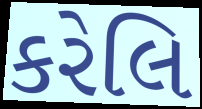
કરેલિ